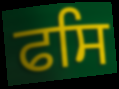
ਫਸਿ